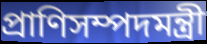
প্রাণিসম্পদমন্ত্রী